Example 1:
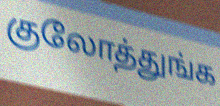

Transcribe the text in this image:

குலோத்துங்க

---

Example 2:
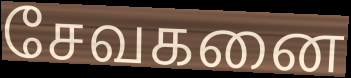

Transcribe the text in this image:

சேவகனை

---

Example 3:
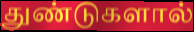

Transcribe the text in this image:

துண்டுகளால்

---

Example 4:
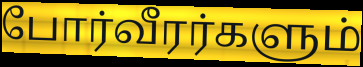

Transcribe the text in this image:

போர்வீரர்களும்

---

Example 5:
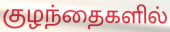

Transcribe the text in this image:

குழந்தைகளில்